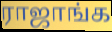
ராஜாங்க